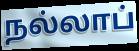
நல்லாப்